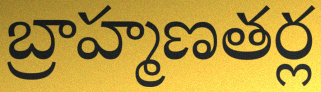
బ్రాహ్మణతర్ల